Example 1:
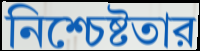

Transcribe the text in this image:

নিশ্চেষ্টতার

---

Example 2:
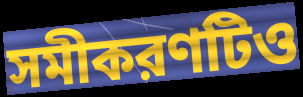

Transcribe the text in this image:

সমীকরণটিও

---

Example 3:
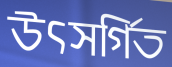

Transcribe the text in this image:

উৎসর্গিত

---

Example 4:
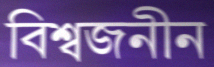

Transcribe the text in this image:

বিশ্বজনীন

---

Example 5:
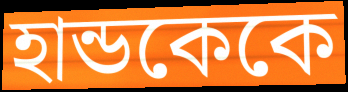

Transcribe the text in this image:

হান্ডকেকে